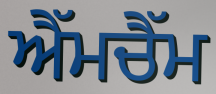
ਐੱਮਚੈੱਮ